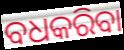
ବଧକରିବା